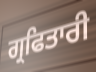
ਗ੍ਰਫਿਤਾਰੀ